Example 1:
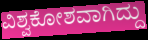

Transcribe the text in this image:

ವಿಶ್ವಕೋಶವಾಗಿದ್ದು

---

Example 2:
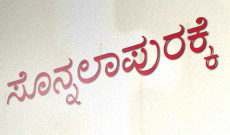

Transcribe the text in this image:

ಸೊನ್ನಲಾಪುರಕ್ಕೆ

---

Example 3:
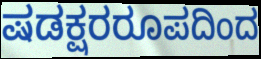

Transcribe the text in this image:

ಷಡಕ್ಷರರೂಪದಿಂದ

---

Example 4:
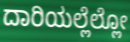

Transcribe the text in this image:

ದಾರಿಯಲ್ಲೆಲ್ಲೋ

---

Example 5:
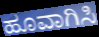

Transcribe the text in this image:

ಹೂವಾಗಿಸಿ